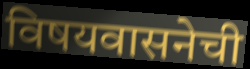
विषयवासनेची